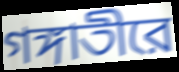
গঙ্গাতীরে